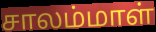
சாலம்மாள்